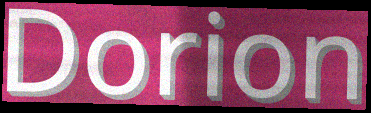
Dorion